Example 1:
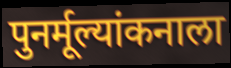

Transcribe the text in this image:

पुनर्मूल्यांकनाला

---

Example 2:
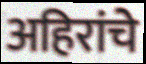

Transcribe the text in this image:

अहिरांचे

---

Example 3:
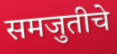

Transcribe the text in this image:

समजुतीचे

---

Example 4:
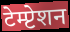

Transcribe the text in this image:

टेम्प्टेशन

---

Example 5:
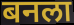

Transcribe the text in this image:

बनला